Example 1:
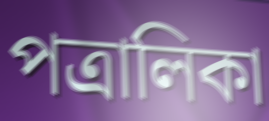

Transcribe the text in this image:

পত্রালিকা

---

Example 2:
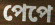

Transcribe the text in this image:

পেপে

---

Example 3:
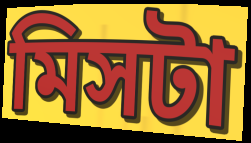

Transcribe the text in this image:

মিসটা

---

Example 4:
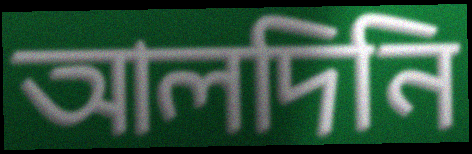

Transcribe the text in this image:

আলদিনি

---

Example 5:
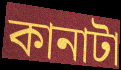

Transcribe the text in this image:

কানাটা